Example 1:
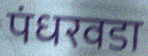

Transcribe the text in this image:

पंधरवडा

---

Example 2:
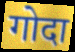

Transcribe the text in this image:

गोदा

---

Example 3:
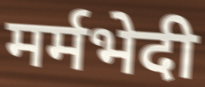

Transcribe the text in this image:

मर्मभेदी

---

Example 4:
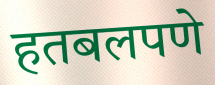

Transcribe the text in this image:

हतबलपणे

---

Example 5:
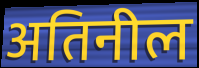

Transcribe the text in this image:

अतिनील